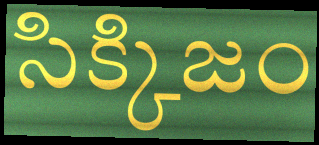
సిక్కిజం